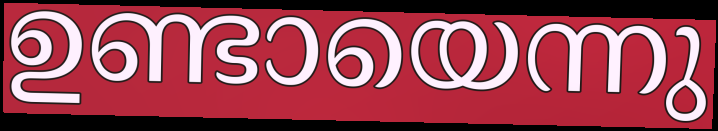
ഉണ്ടായെന്നു